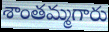
శాంతమ్మగారు